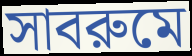
সাবরুমে